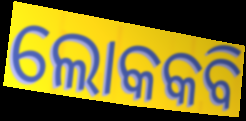
ଲୋକକବି